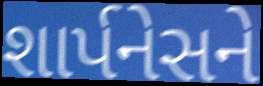
શાર્પનેસને